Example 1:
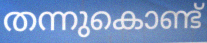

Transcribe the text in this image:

തന്നുകൊണ്ട്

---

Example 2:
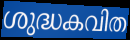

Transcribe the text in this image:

ശുദ്ധകവിത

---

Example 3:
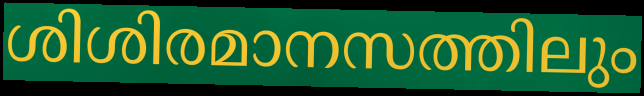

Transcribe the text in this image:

ശിശിരമാനസത്തിലും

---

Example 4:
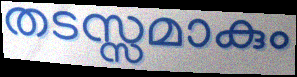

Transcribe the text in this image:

തടസ്സമാകും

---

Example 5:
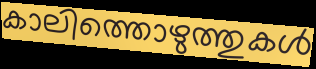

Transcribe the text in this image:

കാലിത്തൊഴുത്തുകൾ